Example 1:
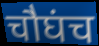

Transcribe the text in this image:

चौघंच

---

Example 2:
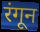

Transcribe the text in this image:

रंगून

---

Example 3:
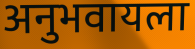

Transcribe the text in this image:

अनुभवायला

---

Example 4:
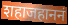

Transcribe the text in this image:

शहाजहाननं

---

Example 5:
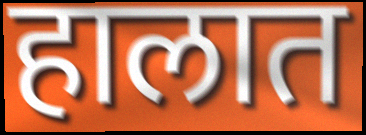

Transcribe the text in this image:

हालात